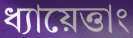
ধ্যায়েত্তাং